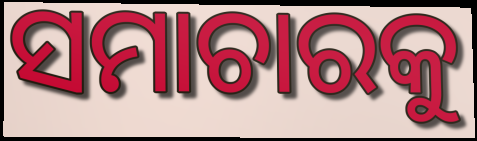
ସମାଚାରକୁ